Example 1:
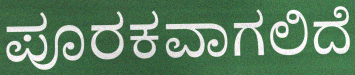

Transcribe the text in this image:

ಪೂರಕವಾಗಲಿದೆ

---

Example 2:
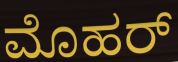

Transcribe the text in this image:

ಮೊಹರ್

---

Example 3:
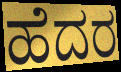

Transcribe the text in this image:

ಹೆದರ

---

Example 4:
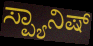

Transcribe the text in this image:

ಸ್ಪ್ಯಾನಿಷ್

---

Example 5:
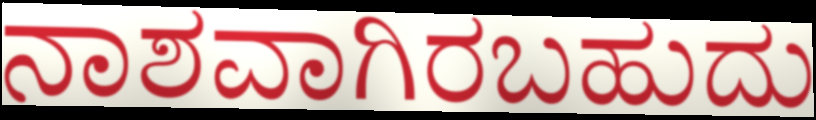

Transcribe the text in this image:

ನಾಶವಾಗಿರಬಹುದು